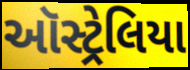
ઑસ્ટ્રેલિયા